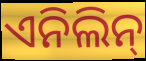
ଏନିଲିନ୍